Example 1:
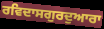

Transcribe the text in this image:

ਰਵਿਦਾਸਗੁਰਦੁਆਰਾ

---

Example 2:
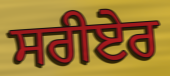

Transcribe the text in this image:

ਸਰੀਏਰ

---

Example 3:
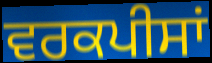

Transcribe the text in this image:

ਵਰਕਪੀਸਾਂ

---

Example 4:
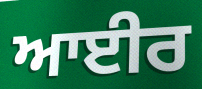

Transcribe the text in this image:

ਆਈਰ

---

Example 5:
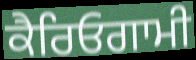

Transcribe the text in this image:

ਕੈਰਿਓਗਾਮੀ